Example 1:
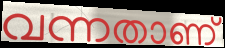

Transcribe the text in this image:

വന്നതാണ്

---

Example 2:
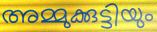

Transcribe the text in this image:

അമ്മുക്കുട്ടിയും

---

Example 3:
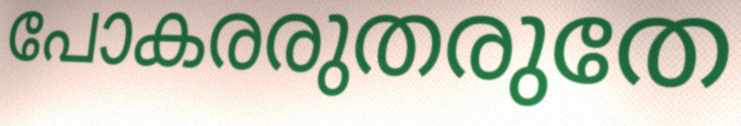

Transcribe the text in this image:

പോകരരുതരുതേ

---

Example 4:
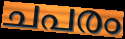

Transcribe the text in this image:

ചപരം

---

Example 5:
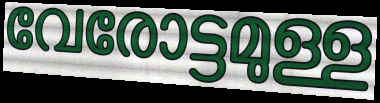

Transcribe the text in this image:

വേരോട്ടമുള്ള